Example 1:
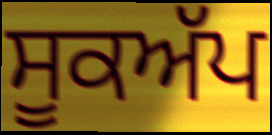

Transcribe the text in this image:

ਸੂਕਅੱਪ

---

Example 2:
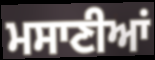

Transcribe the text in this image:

ਮਸਾਣੀਆਂ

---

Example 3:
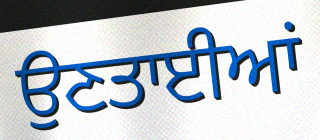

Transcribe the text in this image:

ਉਣਤਾਈਆਂ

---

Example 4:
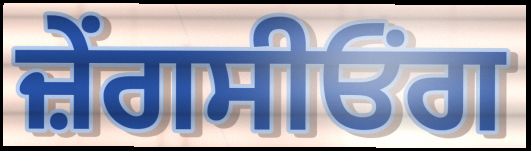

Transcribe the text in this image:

ਜ਼ੇਂਗਸੀਓਂਗ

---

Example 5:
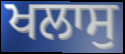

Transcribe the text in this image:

ਖਲਾਸੁ